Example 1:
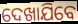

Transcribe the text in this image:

ଦେଖାଯିବେ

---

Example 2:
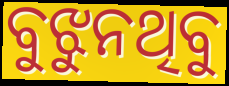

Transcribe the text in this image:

ବୁଝୁନଥିବୁ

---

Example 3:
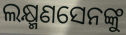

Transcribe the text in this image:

ଲକ୍ଷ୍ମଣସେନଙ୍କୁ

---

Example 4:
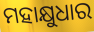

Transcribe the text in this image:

ମହାକ୍ଷୁଧାର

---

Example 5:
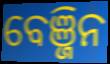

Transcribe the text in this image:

ବେଞ୍ଜିନ